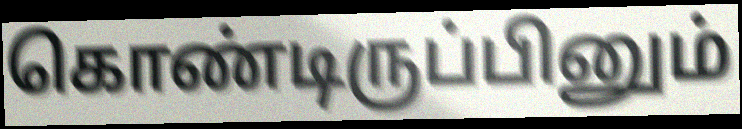
கொண்டிருப்பினும்